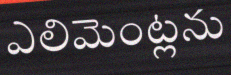
ఎలిమెంట్లను